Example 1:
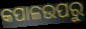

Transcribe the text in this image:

କପାଳଉପରୁ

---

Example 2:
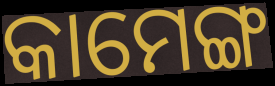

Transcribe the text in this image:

କାମେଙ୍ଗ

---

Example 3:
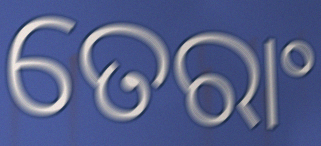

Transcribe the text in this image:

ତେରାଂ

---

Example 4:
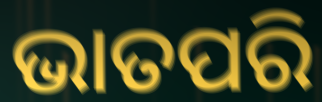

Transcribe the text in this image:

ଭାତପରି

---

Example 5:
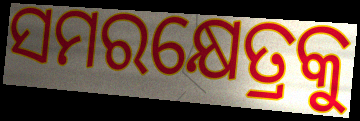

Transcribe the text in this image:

ସମରକ୍ଷେତ୍ରକୁ